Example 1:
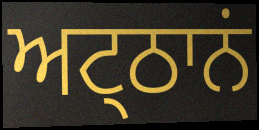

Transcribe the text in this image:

ਅਟ੍ਠਾਨਂ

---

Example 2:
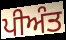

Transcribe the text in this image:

ਪੀਅੰਤ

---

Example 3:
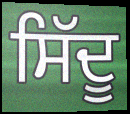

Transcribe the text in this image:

ਸਿੱਦੂ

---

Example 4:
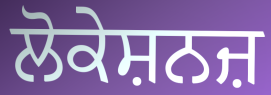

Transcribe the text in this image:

ਲੋਕੇਸ਼ਨਜ਼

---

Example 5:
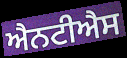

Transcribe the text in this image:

ਐਨਟੀਐਸ